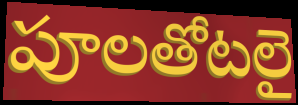
పూలతోటలై